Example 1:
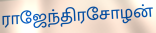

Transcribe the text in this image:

ராஜேந்திரசோழன்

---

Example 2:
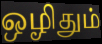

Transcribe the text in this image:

ஒழிதும்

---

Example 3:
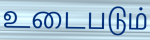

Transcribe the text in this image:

உடைபடும்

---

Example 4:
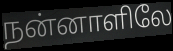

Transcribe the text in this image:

நன்னாளிலே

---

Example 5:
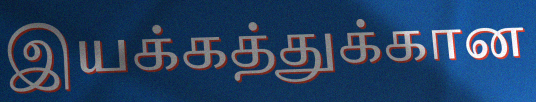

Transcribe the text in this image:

இயக்கத்துக்கான